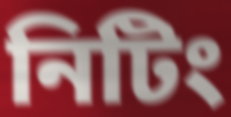
নিটিং